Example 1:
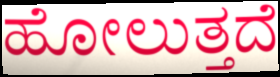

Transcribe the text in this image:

ಹೋಲುತ್ತದೆ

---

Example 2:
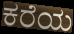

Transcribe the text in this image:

ಕರೆಯ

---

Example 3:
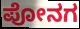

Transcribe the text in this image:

ಪೋನಗ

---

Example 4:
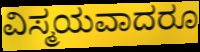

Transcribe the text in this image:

ವಿಸ್ಮಯವಾದರೂ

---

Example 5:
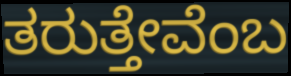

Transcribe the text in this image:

ತರುತ್ತೇವೆಂಬ